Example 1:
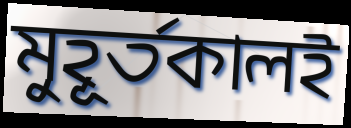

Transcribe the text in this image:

মুহূর্তকালই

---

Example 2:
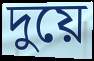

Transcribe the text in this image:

দুয়ে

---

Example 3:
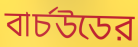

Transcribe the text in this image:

বার্চউডের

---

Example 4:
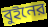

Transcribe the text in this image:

বুইনের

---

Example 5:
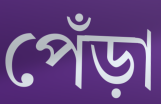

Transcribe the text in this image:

পেঁড়া